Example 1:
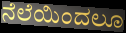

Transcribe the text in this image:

ನೆಲೆಯಿಂದಲೂ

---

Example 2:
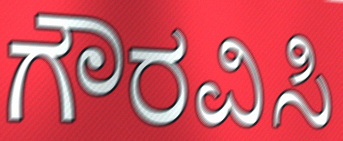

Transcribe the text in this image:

ಗೌರವಿಸಿ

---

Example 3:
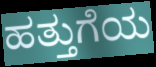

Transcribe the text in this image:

ಹತ್ತುಗೆಯ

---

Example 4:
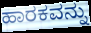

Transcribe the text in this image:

ಹಾರಕವನ್ನು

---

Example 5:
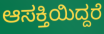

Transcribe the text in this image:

ಆಸಕ್ತಿಯಿದ್ದರೆ